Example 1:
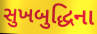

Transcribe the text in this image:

સુખબુદ્ધિના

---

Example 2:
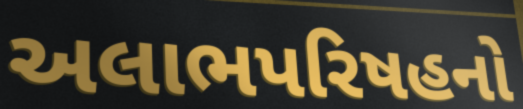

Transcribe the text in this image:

અલાભપરિષહનો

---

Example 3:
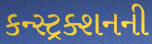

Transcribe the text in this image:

કન્સ્ટ્રક્શનની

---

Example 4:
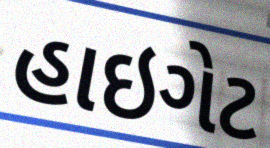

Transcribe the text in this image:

હાઇગેટ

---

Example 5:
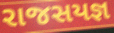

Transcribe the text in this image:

રાજસયજ્ઞ